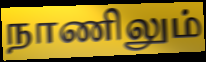
நாணிலும்